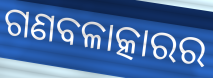
ଗଣବଳାତ୍କାରର